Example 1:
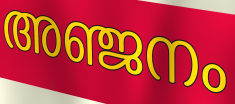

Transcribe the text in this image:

അഞ്ജനം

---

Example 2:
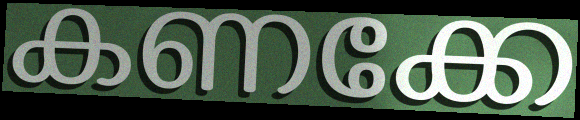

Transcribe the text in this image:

കണക്കേ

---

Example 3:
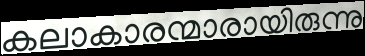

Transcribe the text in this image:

കലാകാരന്മാരായിരുന്നു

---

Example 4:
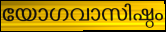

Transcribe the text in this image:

യോഗവാസിഷ്ഠം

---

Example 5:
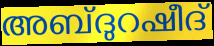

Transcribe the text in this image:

അബ്ദുറഷീദ്